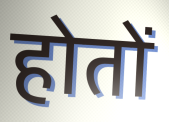
होतों